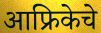
आफ्रिकेचे